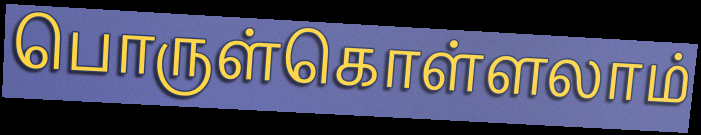
பொருள்கொள்ளலாம்